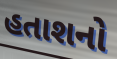
હતાશનો